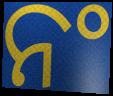
ନଂ